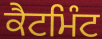
ਕੈਟਮਿੰਟ